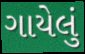
ગાયેલું